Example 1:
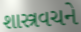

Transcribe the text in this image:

શાસ્ત્રવચને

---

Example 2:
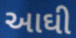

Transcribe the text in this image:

આઘી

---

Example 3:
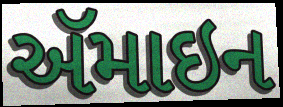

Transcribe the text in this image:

ઍમાઇન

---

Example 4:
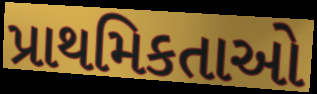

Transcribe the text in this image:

પ્રાથમિકતાઓ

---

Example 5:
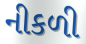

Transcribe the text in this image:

નીકળી